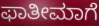
ಫಾತೀಮಾಗೆ